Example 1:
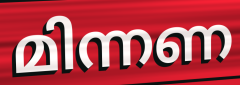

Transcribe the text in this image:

മിന്നണ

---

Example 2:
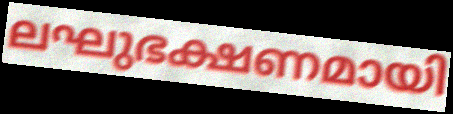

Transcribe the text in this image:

ലഘുഭക്ഷണമായി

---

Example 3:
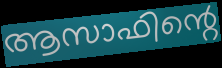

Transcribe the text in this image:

ആസാഫിന്റെ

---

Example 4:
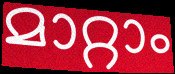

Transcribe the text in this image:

മാറ്റാം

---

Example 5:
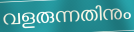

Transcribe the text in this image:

വളരുന്നതിനും